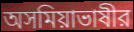
অসমিয়াভাষীর